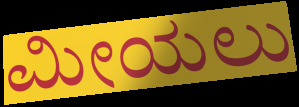
ಮೀಯಲು